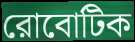
রোবোটিক